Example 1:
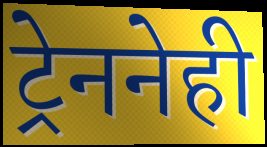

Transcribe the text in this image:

ट्रेननेही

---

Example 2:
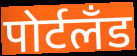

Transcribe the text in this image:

पोर्टलॅंड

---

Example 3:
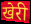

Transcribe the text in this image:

खेरी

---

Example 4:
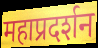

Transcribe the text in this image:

महाप्रदर्शन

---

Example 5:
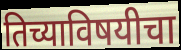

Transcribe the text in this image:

तिच्याविषयीचा